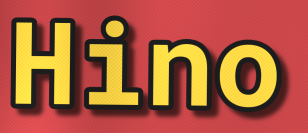
Hino